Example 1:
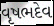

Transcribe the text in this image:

વૃષભદેવ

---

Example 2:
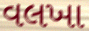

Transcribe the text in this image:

વલખા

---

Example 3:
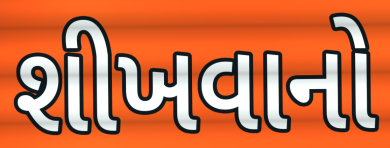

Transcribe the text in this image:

શીખવાનો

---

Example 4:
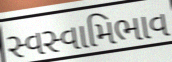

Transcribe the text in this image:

સ્વસ્વામિભાવ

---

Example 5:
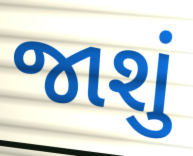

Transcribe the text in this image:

જાશું